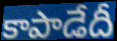
కాపాడేదీ